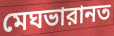
মেঘভারানত